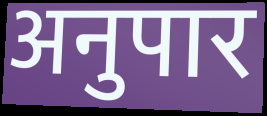
अनुपार